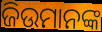
ଜିଉମାନଙ୍କ